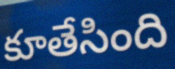
కూతేసింది